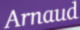
Arnaud